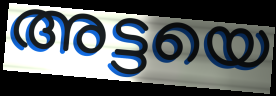
അട്ടയെ